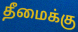
தீமைக்கு